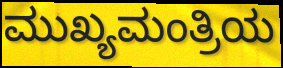
ಮುಖ್ಯಮಂತ್ರಿಯ